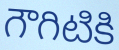
గౌగిటికి